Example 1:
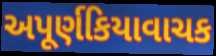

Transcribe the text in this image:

અપૂર્ણકિયાવાચક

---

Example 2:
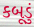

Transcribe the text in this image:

કબૂડું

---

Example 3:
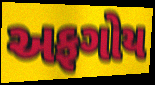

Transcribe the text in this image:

અફગોય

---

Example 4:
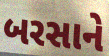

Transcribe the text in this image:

બરસાને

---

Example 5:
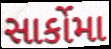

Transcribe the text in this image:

સાર્કોમા